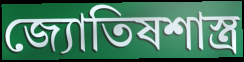
জ্যোতিষশাস্ত্র